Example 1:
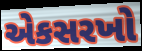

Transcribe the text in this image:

એકસરખો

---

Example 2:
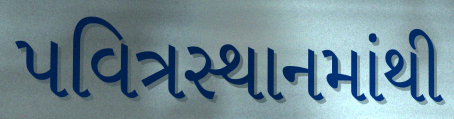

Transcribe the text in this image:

પવિત્રસ્થાનમાંથી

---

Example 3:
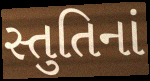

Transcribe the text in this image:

સ્તુતિનાં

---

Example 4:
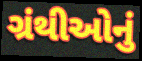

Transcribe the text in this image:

ગ્રંથીઓનું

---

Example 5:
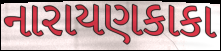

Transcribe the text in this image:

નારાયણકાકા